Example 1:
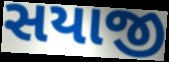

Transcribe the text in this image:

સયાજી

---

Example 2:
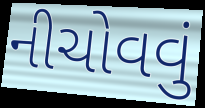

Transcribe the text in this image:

નીચોવવું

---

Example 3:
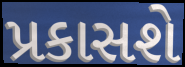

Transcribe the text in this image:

પ્રકાસશે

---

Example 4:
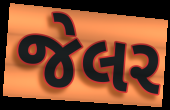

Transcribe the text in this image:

જેલર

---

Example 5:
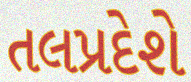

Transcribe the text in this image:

તલપ્રદેશે